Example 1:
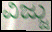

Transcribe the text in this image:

ವಿಜ್ಜು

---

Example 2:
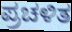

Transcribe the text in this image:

ಪ್ರಚಳಿತ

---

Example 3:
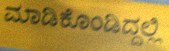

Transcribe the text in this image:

ಮಾಡಿಕೊಂಡಿದ್ದಲ್ಲಿ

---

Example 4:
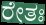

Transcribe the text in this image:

ರೇತಃ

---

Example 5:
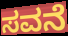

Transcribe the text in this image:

ಸವನೆ